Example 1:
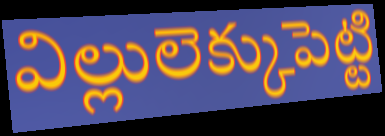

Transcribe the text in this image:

విల్లులెక్కుపెట్టి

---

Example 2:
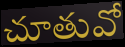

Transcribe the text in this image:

చూతువో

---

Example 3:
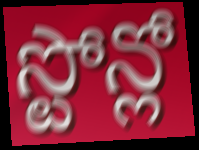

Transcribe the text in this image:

స్టోన్లో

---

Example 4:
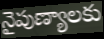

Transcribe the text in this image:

నైపుణ్యాలకు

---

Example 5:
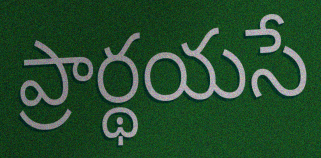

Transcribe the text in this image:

ప్రార్థయసే